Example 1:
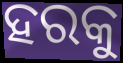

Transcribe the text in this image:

ହରକୁ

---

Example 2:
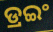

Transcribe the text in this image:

ଡ୍ରଇଂ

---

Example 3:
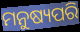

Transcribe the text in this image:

ମନୁଷ୍ୟପରି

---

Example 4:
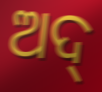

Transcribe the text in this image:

ଅଦ୍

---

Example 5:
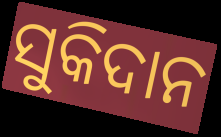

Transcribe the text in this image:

ସୁକିଦାନ